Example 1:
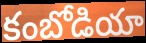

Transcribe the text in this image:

కంబోడియా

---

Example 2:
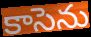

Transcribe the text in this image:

కాసెను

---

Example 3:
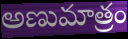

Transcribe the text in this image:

అణుమాత్రం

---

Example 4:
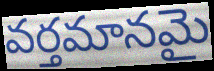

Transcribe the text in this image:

వర్తమానమై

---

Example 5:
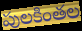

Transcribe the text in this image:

పులకింతల